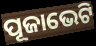
ପୂଜାଭେଟି